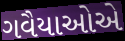
ગવૈયાઓએ